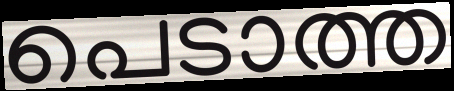
പെടാത്ത